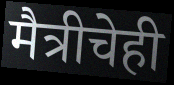
मैत्रीचेही